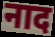
नाद